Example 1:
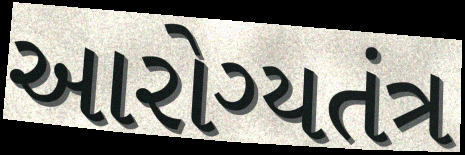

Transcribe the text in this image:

આરોગ્યતંત્ર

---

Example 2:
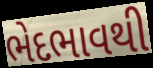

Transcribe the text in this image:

ભેદભાવથી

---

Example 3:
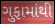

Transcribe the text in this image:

ગુફામાંથી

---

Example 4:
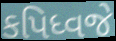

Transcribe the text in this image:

કપિધ્વજે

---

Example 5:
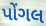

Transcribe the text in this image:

પોંગલ